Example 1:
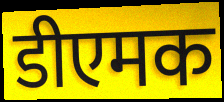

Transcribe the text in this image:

डीएमक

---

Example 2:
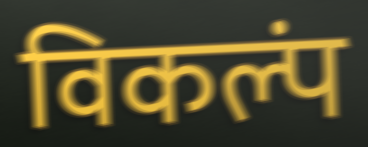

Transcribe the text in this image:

विकल्पं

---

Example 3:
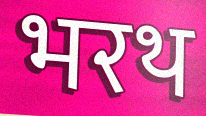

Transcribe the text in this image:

भरथ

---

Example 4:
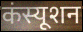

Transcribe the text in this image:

कंस्यूशन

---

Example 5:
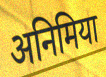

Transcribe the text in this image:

अनिमिया